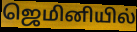
ஜெமினியில்